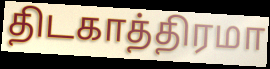
திடகாத்திரமா